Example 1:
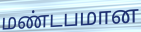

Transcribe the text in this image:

மண்டபமான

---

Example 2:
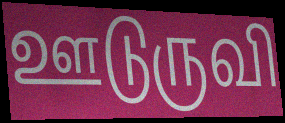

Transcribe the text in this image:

ஊடுருவி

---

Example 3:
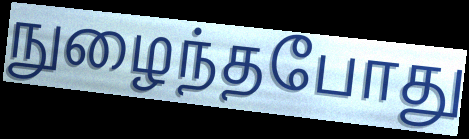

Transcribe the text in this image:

நுழைந்தபோது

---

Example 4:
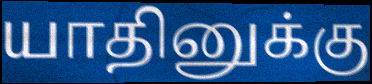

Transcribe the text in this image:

யாதினுக்கு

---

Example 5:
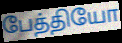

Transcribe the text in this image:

பேத்தியோ